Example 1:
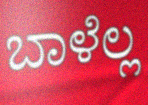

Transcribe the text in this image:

ಬಾಳೆಲ್ಲ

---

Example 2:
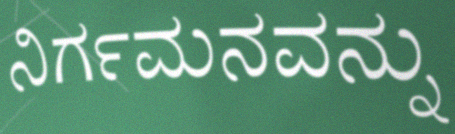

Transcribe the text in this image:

ನಿರ್ಗಮನವನ್ನು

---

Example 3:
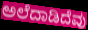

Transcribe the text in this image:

ಅಲೆದಾಡಿದೆವು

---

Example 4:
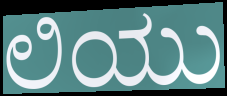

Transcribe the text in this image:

ಲಿಯು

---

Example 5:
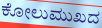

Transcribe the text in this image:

ಕೋಲುಮುಖದ